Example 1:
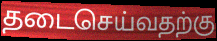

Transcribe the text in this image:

தடைசெய்வதற்கு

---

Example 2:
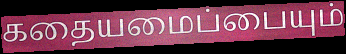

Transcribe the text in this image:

கதையமைப்பையும்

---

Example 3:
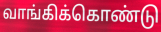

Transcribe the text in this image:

வாங்கிக்கொண்டு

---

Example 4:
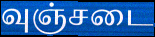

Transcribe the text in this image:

வுஞ்சடை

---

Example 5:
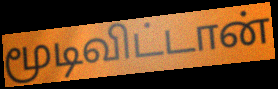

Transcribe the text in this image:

மூடிவிட்டான்